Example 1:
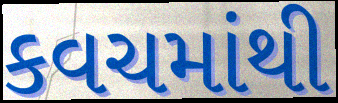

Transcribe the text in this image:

કવચમાંથી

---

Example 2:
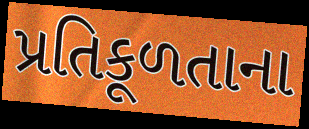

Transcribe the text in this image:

પ્રતિકૂળતાના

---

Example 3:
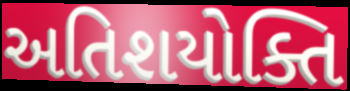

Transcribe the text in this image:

અતિશયોક્તિ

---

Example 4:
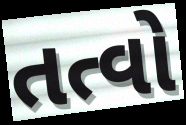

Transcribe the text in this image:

તત્વો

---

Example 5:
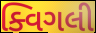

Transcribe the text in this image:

ક્વિગલી